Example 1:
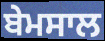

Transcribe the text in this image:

ਬੇਮਸਾਲ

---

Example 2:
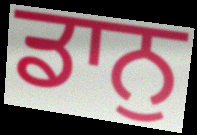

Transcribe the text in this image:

ਡਾਨੁ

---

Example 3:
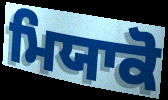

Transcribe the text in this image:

ਮਿਯਾਕੋ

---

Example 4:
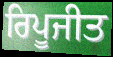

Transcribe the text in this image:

ਰਿਪੂਜੀਤ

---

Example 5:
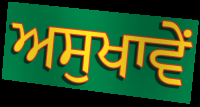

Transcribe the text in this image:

ਅਸੁਖਾਵੇਂ